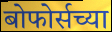
बोफोर्सच्या